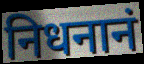
निधनानं